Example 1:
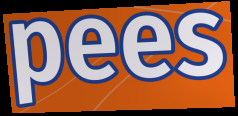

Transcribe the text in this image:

pees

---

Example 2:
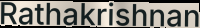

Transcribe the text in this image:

Rathakrishnan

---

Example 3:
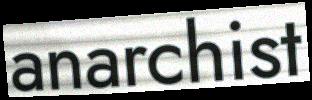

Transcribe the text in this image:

anarchist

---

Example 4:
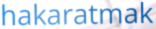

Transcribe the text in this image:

hakaratmak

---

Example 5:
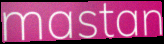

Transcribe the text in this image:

mastan